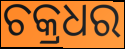
ଚକ୍ରଧର